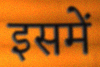
इसमें